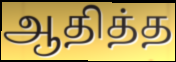
ஆதித்த